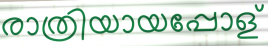
രാത്രിയായപ്പോള്